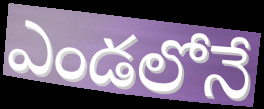
ఎండలోనే